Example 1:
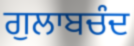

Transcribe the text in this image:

ਗੁਲਾਬਚੰਦ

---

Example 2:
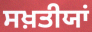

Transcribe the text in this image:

ਸਖ਼ਤੀਯਾਂ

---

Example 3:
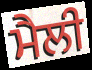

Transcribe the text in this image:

ਮੈਲੀ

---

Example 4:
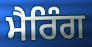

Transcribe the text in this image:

ਮੈਰਿੰਗ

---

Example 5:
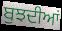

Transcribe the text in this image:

ਬੁਝਦੀਆਂ